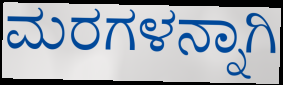
ಮರಗಳನ್ನಾಗಿ